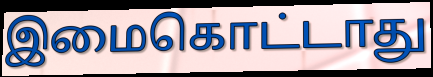
இமைகொட்டாது